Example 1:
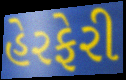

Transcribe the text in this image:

હેરફેરી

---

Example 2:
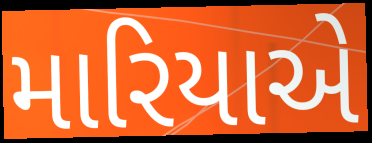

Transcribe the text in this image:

મારિયાએ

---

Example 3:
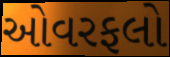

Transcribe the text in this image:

ઓવરફલો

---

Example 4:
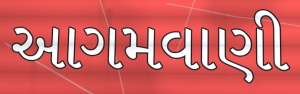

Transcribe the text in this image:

આગમવાણી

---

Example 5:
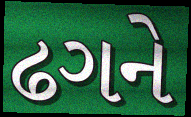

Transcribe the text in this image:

ઢગને